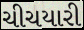
ચીચયારી